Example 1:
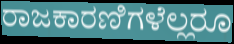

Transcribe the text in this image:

ರಾಜಕಾರಣಿಗಳೆಲ್ಲರೂ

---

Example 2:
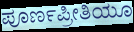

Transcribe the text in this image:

ಪೂರ್ಣಪ್ರೀತಿಯೂ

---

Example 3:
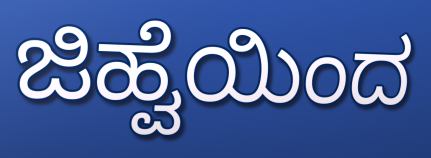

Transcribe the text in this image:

ಜಿಹ್ವೆಯಿಂದ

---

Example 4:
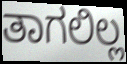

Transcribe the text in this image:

ತಾಗಲಿಲ್ಲ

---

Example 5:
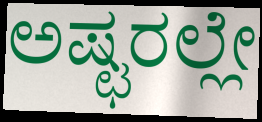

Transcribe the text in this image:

ಅಷ್ಟರಲ್ಲೇ